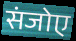
संजोए